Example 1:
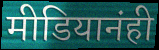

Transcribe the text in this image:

मीडियानंही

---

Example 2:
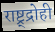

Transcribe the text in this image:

राष्ट्र्द्रोही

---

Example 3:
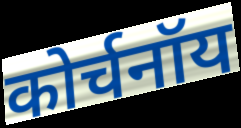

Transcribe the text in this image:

कोर्चनॉय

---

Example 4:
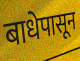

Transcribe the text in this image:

बाधेपासून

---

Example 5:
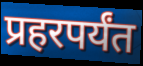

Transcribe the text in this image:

प्रहरपर्यंत